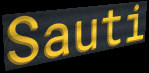
Sauti